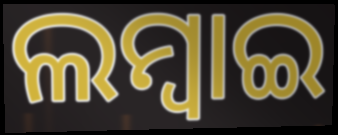
ଲମ୍ବାଇ